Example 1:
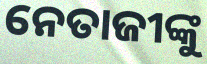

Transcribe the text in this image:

ନେତାଜୀଙ୍କୁ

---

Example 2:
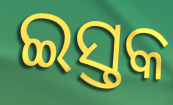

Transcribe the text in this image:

ଇସ୍ତକ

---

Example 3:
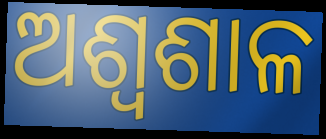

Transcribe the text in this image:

ଅଶ୍ୱଶାଳ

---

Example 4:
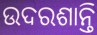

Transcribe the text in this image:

ଉଦରଶାନ୍ତି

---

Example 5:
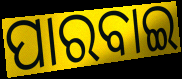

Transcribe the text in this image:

ପାରବାଇ